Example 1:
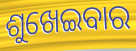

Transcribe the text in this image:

ଶୁଖେଇବାର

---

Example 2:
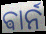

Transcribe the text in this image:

ଵାର୍ନ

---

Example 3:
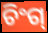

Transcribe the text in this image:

ଚିଂଗ୍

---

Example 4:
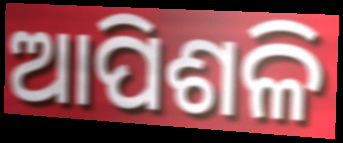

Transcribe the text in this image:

ଆପିଶଳି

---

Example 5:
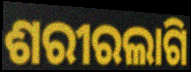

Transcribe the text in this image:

ଶରୀରଲାଗି